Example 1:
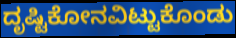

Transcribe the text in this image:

ದೃಷ್ಟಿಕೋನವಿಟ್ಟುಕೊಂಡು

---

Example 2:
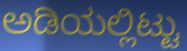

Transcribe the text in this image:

ಅಡಿಯಲ್ಲಿಟ್ಟು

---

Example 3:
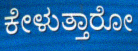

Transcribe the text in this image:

ಕೇಳುತ್ತಾರೋ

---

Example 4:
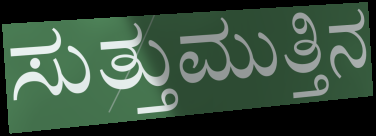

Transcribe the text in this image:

ಸುತ್ತುಮುತ್ತಿನ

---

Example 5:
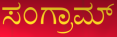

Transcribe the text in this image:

ಸಂಗ್ರಾಮ್